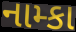
નામ્કા